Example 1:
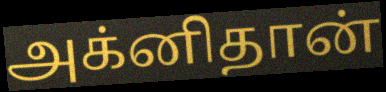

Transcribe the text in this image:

அக்னிதான்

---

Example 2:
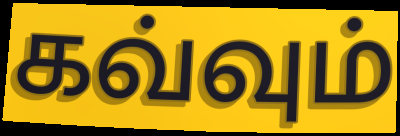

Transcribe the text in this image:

கவ்வும்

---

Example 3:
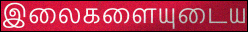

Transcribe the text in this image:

இலைகளையுடைய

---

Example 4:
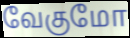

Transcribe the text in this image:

வேகுமோ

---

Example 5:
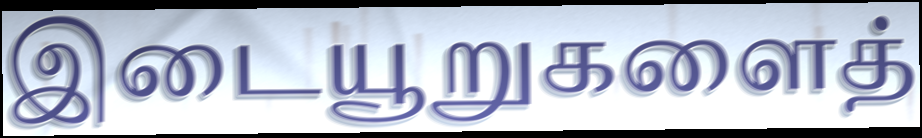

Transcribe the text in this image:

இடையூறுகளைத்